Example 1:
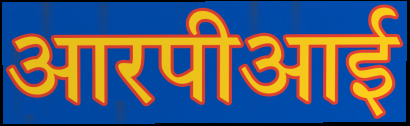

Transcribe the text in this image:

आरपीआई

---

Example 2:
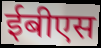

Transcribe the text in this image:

ईबीएस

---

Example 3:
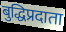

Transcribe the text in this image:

बुद्धिप्रदाता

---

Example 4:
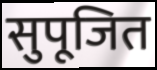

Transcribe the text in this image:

सुपूजित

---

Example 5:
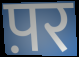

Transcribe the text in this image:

प़र